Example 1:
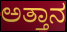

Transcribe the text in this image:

ಅತ್ತಾನ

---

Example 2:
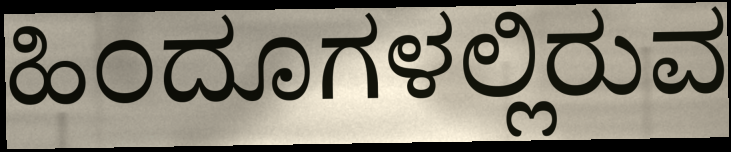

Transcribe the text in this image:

ಹಿಂದೂಗಳಲ್ಲಿರುವ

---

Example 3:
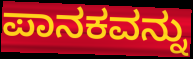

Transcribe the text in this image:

ಪಾನಕವನ್ನು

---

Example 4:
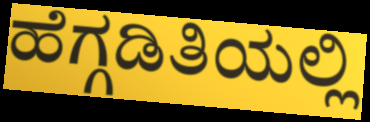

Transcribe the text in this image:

ಹೆಗ್ಗಡಿತಿಯಲ್ಲಿ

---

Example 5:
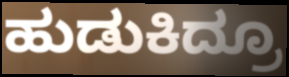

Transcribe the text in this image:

ಹುಡುಕಿದ್ರೂ